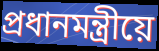
প্ৰধানমন্ত্ৰীয়ে